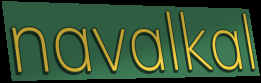
navalkal